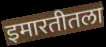
इमारतीतला